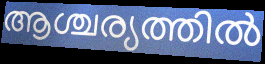
ആശ്ചര്യത്തിൽ